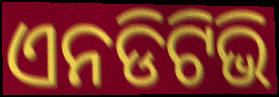
ଏନଡିଟିଭି